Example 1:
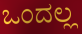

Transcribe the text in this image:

ಒಂದಲ್ಲ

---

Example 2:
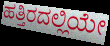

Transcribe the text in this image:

ಹತ್ತಿರದಲ್ಲಿಯೇ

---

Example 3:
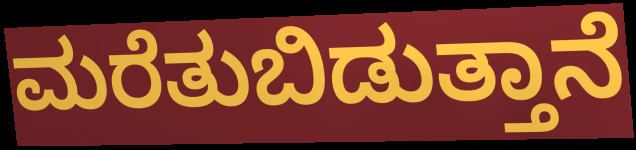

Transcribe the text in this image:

ಮರೆತುಬಿಡುತ್ತಾನೆ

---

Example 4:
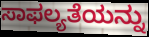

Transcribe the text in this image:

ಸಾಫಲ್ಯತೆಯನ್ನು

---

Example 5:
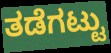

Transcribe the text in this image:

ತಡೆಗಟ್ಟು